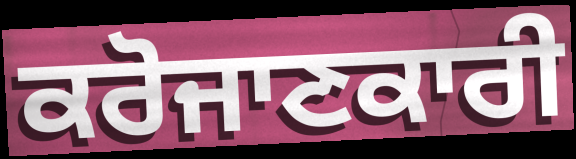
ਕਰੋਜਾਣਕਾਰੀ